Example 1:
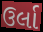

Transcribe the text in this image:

ઉર્લા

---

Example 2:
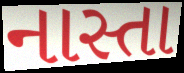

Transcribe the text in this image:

નાસ્તા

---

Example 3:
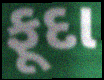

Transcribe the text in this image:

ફૂદા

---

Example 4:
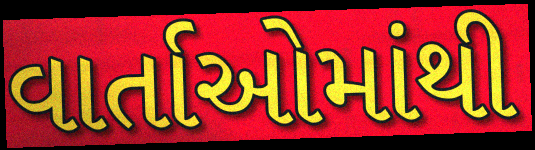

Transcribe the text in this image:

વાર્તાઓમાંથી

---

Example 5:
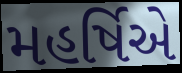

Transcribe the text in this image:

મહર્ષિએ